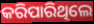
କରିପାରିଥିଲେ